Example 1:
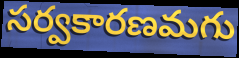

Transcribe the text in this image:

సర్వకారణమగు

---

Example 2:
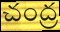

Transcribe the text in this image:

చంద్ర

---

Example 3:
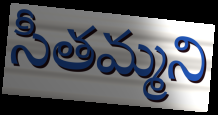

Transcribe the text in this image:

సీతమ్మని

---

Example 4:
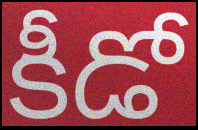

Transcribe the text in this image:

కీడో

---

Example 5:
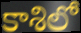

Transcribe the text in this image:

కాశిలో